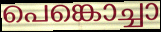
പെങ്കൊച്ചാ